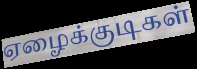
ஏழைக்குடிகள்